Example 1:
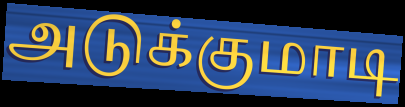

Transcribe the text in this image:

அடுக்குமாடி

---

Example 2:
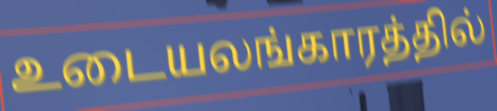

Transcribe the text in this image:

உடையலங்காரத்தில்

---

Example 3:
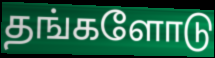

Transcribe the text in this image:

தங்களோடு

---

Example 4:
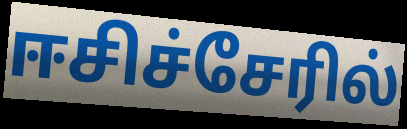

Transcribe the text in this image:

ஈசிச்சேரில்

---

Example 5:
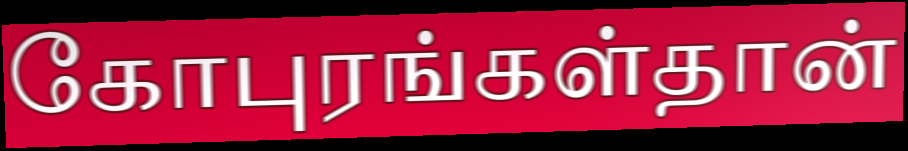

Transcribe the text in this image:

கோபுரங்கள்தான்